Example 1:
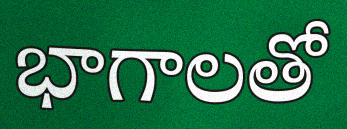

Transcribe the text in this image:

భాగాలతో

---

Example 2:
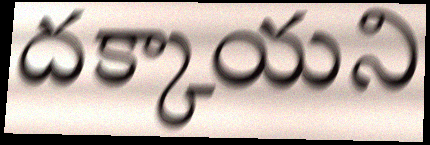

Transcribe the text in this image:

దక్కాయని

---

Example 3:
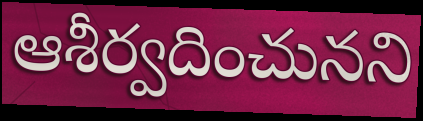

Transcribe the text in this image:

ఆశీర్వదించునని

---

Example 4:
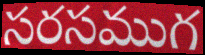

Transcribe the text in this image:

సరసముగ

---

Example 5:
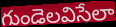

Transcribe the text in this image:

గుండెలవిసేలా